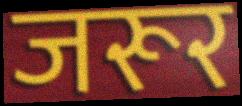
जरूर